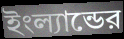
ইংল্য়ান্ডের